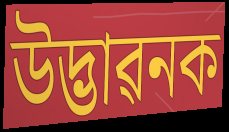
উদ্ভাৱনক